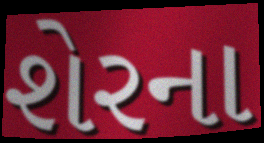
શેરના